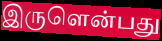
இருளென்பது